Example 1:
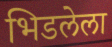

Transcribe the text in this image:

भिडलेला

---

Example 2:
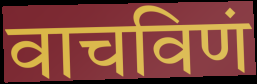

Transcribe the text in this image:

वाचविणं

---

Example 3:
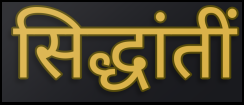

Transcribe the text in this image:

सिद्धांतीं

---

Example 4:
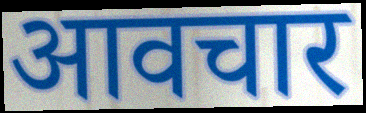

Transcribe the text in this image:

आवचार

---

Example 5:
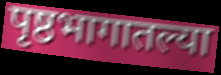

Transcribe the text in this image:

पृष्ठभागातल्या